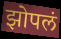
झोपलं